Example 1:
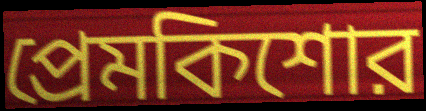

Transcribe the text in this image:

প্রেমকিশোর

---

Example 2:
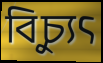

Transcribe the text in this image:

বিচ্যুৎ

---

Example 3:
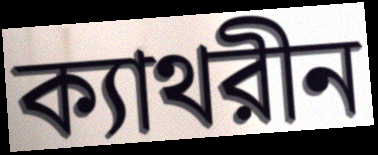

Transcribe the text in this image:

ক্যাথরীন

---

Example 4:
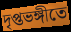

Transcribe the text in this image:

দৃপ্তভঙ্গীতে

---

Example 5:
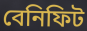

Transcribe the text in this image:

বেনিফিট